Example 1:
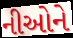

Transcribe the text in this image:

નીઓને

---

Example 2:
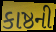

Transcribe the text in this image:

કાષ્ઠની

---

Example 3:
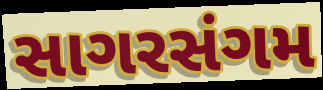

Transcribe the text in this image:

સાગરસંગમ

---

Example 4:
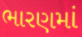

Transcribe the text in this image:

ભારણમાં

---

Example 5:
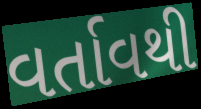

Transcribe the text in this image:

વર્તાવથી